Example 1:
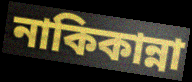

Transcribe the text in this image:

নাকিকান্না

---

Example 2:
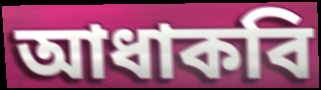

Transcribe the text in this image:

আধাকবি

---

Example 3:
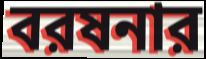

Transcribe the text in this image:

বরষনার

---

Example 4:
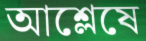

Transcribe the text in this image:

আশ্লেষে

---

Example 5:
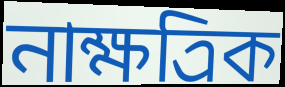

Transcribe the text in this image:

নাক্ষত্রিক